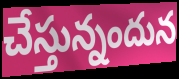
చేస్తున్నందున